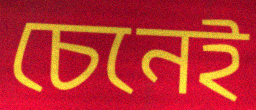
চেনেই